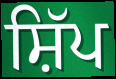
ਸ਼ਿੱਪ